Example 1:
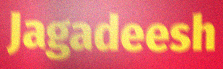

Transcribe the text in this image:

Jagadeesh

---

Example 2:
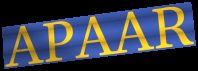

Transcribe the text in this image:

APAAR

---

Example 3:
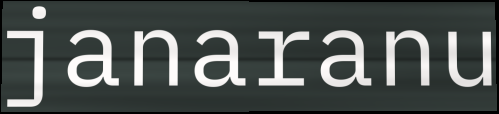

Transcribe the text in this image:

janaranu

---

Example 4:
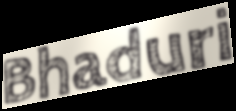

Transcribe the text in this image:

Bhaduri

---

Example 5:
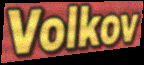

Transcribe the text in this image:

Volkov